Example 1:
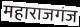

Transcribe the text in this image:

महाराजगंज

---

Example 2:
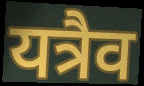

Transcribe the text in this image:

यत्रैव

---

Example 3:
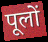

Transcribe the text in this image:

पूलों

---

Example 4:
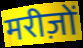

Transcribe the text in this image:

मरीज़ों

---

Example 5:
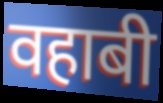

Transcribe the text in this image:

वहाबी